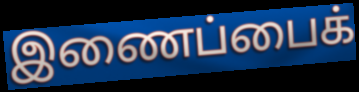
இணைப்பைக்